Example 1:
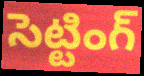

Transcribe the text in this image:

సెట్టింగ్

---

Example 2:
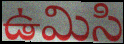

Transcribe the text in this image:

ఉమిసి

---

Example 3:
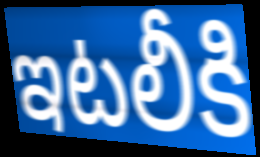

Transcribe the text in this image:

ఇటలీకి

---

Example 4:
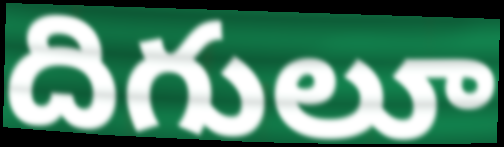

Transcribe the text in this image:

దిగులూ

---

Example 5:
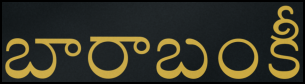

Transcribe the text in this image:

బారాబంకీ